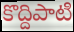
కొద్దిపాటి